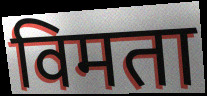
विमता